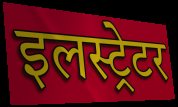
इलस्ट्रेटर